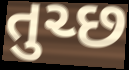
તુચ્છ